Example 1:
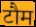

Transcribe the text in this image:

टौम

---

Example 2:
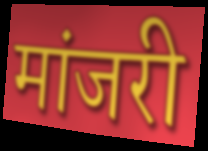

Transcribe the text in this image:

मांजरी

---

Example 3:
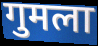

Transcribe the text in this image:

गुमला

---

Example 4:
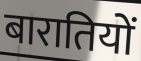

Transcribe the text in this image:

बारातियों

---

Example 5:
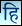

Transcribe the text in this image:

हि